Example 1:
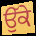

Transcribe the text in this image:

ਉੱਕੇ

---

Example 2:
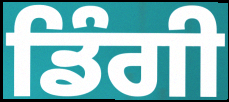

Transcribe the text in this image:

ਡਿੰਗੀ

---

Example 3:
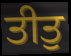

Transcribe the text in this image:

ਤੀਤੁ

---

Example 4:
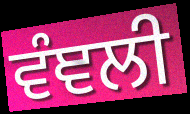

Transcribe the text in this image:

ਵੰਞਲੀ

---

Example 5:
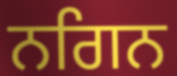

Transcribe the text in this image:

ਨਗਿਨ